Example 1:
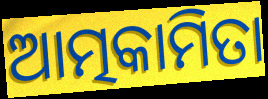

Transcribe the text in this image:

ଆତ୍ମକାମିତା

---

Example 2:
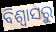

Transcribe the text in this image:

ବିଶ୍ବାସରୁ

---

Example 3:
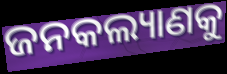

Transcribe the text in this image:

ଜନକଲ୍ୟାଣକୁ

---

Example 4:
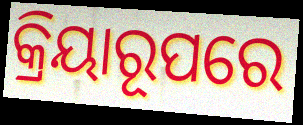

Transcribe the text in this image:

କ୍ରିୟାରୂପରେ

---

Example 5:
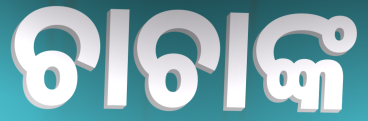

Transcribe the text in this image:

ଚାଚାଙ୍କ